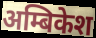
अम्बिकेश